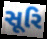
સૂરિ